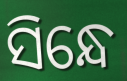
ସିନ୍ଧେ